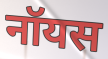
नॉयस